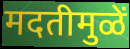
मदतीमुळें